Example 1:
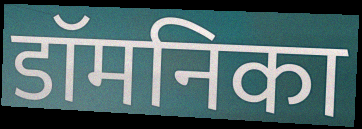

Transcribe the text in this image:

डॉमनिका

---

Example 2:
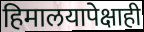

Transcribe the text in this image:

हिमालयापेक्षाही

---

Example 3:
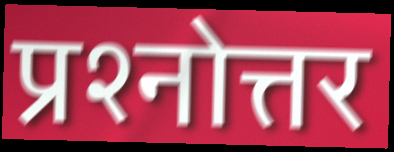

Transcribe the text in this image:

प्रश्नोत्तर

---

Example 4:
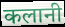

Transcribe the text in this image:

कलानी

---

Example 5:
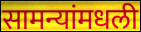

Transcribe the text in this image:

सामन्यांमधली